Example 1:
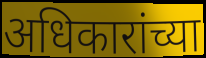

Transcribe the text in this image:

अधिकारांच्या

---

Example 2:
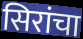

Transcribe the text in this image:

सिरांचा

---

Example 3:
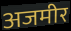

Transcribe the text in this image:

अजमीर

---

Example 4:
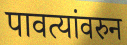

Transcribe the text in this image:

पावत्यांवरुन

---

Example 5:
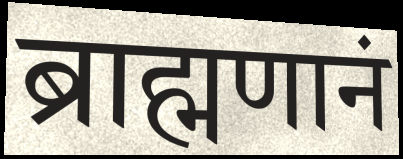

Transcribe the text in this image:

ब्राह्मणानं